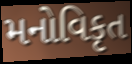
મનોવિકૃત